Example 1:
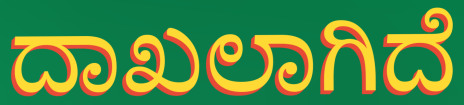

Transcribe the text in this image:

ದಾಖಲಾಗಿದೆ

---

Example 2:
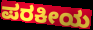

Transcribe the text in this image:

ಪರಕೀಯ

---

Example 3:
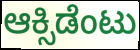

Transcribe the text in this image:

ಆಕ್ಸಿಡೆಂಟು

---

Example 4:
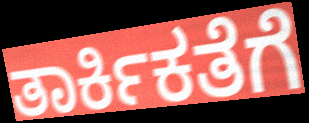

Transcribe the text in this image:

ತಾರ್ಕಿಕತೆಗೆ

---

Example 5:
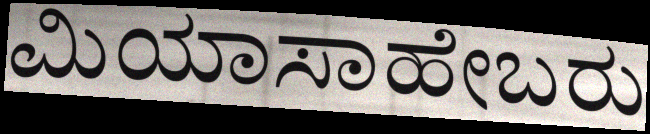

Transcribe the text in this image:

ಮಿಯಾಸಾಹೇಬರು